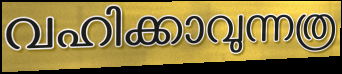
വഹിക്കാവുന്നത്ര